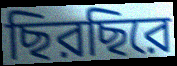
ছিরছিরে